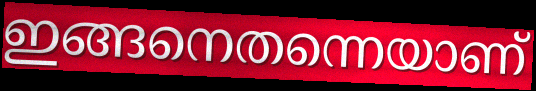
ഇങ്ങനെതന്നെയാണ്